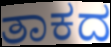
ತಾಕದ